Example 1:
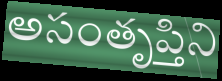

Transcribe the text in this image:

అసంతృప్తిని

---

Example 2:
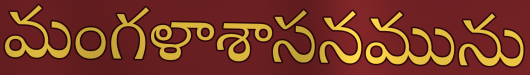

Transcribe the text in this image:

మంగళాశాసనమును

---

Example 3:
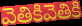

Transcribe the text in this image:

వెతికివెతికి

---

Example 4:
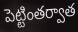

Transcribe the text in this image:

పెట్టింతర్వాత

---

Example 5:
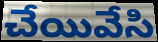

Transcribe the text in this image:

చేయివేసి